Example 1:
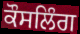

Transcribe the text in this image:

ਕੌਸਲਿੰਗ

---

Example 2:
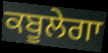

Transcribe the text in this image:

ਕਬੂਲੇਗਾ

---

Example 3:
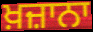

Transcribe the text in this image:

ਖ਼ਜ਼ਾਨਾ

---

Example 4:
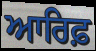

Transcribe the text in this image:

ਆਰਿਫ਼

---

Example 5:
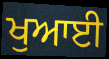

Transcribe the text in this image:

ਖੁਆਈ